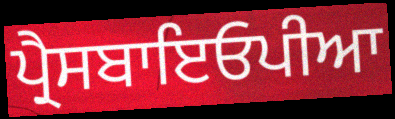
ਪ੍ਰੈਸਬਾਇਓਪੀਆ